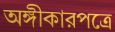
অঙ্গীকারপত্রে